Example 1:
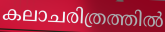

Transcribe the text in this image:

കലാചരിത്രത്തിൽ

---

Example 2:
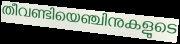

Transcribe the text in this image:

തീവണ്ടിയെഞ്ചിനുകളുടെ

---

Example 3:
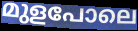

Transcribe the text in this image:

മുളപോലെ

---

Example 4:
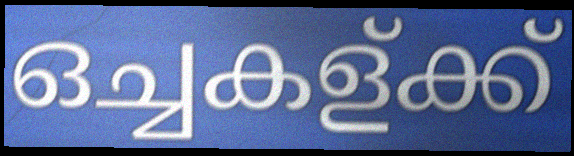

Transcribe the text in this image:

ഒച്ചകള്ക്ക്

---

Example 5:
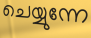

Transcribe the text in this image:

ചെയ്യുന്നേ